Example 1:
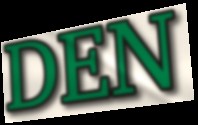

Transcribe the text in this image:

DEN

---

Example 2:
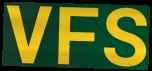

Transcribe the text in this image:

VFS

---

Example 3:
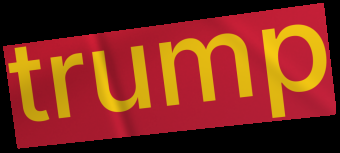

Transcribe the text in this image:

trump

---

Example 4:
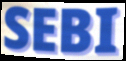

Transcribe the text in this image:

SEBI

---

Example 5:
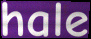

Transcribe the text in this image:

hale